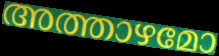
അത്താഴമോ